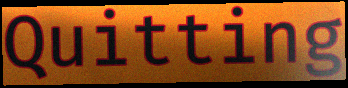
Quitting